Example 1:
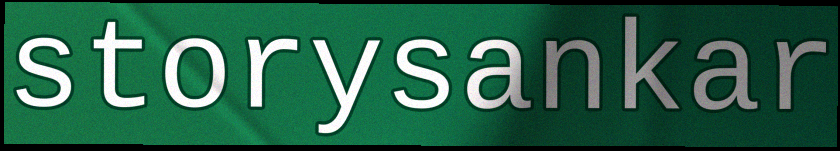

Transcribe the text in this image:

storysankar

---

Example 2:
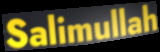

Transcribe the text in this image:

Salimullah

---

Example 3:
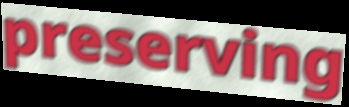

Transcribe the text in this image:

preserving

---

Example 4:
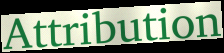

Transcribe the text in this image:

Attribution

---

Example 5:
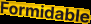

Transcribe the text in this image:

Formidable